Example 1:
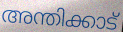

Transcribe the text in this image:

അന്തിക്കാട്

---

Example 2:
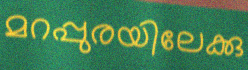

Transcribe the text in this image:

മറപ്പുരയിലേക്കു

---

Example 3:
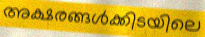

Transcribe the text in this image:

അക്ഷരങ്ങൾക്കിടയിലെ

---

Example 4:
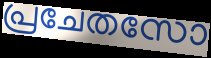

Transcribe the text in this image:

പ്രചേതസോ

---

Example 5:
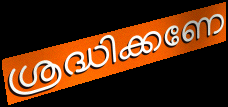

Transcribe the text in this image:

ശ്രദ്ധിക്കണേ